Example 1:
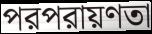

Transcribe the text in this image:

পরপরায়ণতা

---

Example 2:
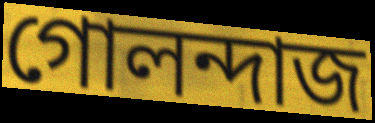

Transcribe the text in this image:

গোলন্দাজ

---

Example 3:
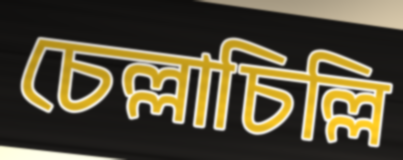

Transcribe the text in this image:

চেল্লাচিল্লি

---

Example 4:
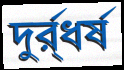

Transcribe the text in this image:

দুর্র্ধর্ষ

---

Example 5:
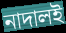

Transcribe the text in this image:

নাদালই